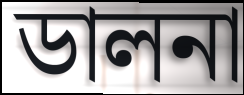
ডালনা